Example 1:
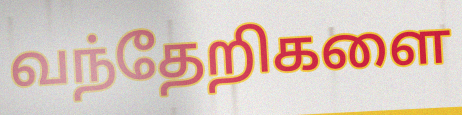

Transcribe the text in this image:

வந்தேறிகளை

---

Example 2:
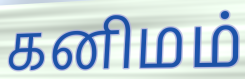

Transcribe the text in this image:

கனிமம்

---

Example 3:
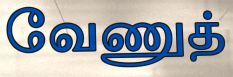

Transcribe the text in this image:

வேணுத்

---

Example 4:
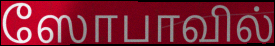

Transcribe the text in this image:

ஸோபாவில்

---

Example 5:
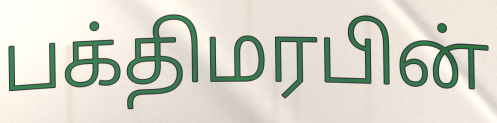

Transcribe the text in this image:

பக்திமரபின்